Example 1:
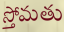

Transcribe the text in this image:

స్తోమతు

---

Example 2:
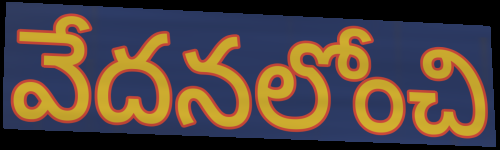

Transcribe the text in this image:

వేదనలోంచి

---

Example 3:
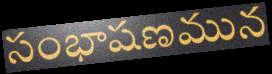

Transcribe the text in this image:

సంభాషణమున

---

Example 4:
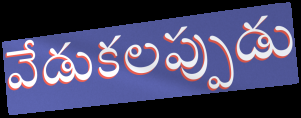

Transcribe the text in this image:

వేడుకలప్పుడు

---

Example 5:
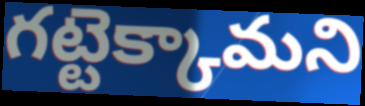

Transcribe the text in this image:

గట్టెక్కామని